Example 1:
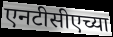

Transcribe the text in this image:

एनटीसीएच्या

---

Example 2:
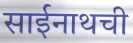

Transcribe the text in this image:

साईनाथची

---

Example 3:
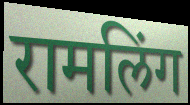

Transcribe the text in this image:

रामलिंग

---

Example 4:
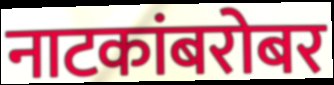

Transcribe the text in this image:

नाटकांबरोबर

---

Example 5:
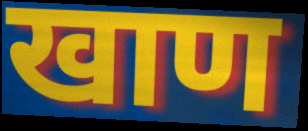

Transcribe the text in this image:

खाण